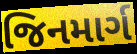
જિનમાર્ગ